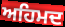
ਅਹਿਮਦ